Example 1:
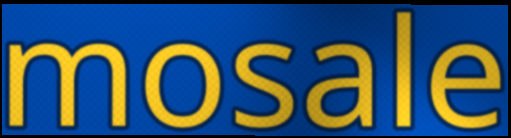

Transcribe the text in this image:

mosale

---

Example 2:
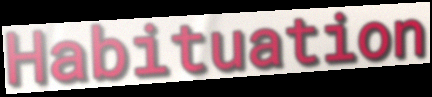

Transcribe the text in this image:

Habituation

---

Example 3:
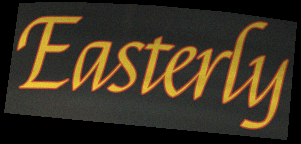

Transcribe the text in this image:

Easterly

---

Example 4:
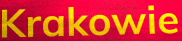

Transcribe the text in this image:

Krakowie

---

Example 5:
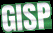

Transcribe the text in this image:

GISP